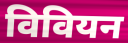
विवियन